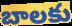
బాలకు